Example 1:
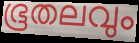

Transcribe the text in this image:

ഭൂതലവും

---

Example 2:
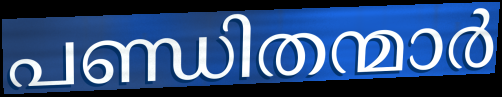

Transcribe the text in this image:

പണ്ഡിതന്മാർ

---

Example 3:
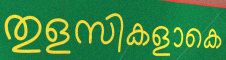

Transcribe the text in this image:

തുളസികളാകെ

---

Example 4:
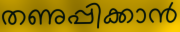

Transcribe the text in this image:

തണുപ്പിക്കാൻ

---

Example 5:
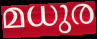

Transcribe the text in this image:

മധുര